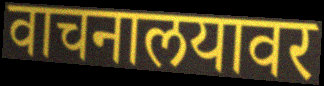
वाचनालयावर